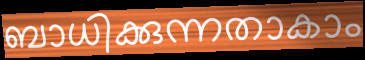
ബാധിക്കുന്നതാകാം